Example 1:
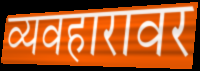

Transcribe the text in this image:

व्यवहारावर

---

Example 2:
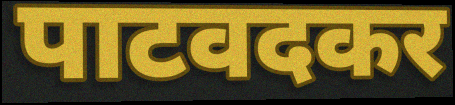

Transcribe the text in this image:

पाटवदकर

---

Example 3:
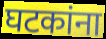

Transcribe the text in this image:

घटकांना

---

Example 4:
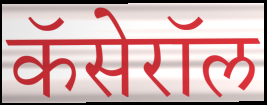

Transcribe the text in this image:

कॅसेरॉल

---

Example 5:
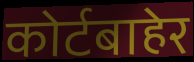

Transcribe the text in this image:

कोर्टबाहेर